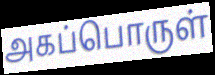
அகப்பொருள்